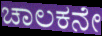
ಚಾಲಕನೇ